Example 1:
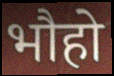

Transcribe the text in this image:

भौहो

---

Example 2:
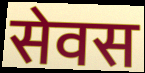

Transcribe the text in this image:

सेवस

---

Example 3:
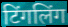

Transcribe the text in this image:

टिंगलिंग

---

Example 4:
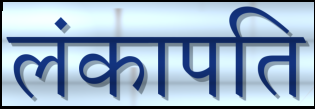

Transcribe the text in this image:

लंकापति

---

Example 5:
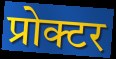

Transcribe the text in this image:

प्रोक्टर